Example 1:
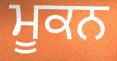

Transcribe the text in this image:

ਮੂਕਨ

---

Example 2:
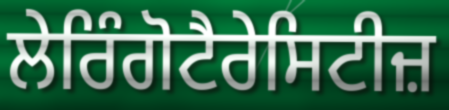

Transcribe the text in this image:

ਲੇਰਿੰਗੋਟੈਰੇਸਿਟੀਜ਼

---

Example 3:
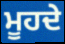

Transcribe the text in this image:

ਮੂਹਦੇ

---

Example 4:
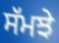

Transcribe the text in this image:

ਸੱਮਝੇ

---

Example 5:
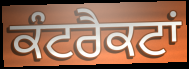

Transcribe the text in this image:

ਕੰਟਰੈਕਟਾਂ